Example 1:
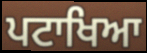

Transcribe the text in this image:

ਪਟਾਖਿਆ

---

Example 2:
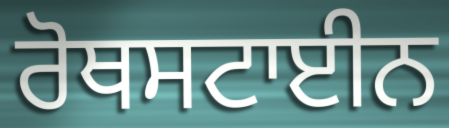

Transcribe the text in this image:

ਰੋਥਸਟਾਈਨ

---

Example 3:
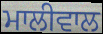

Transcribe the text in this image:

ਮਾਲੀਵਾਲ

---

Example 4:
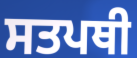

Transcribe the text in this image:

ਸਤਪਥੀ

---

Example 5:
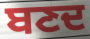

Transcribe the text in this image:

ਬਣਦ